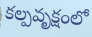
కల్పవృక్షంలో